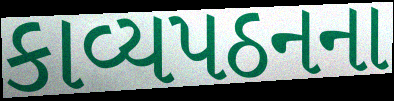
કાવ્યપઠનના